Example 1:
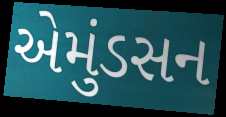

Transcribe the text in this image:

એમુંડસન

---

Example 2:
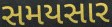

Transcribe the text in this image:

સમયસાર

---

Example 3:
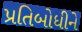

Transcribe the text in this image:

પ્રતિબોધીને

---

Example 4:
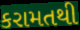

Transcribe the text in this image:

કરામતથી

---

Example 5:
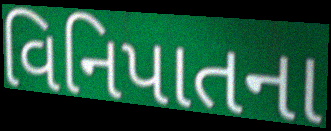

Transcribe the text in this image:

વિનિપાતના